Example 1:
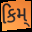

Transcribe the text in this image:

કિમ્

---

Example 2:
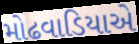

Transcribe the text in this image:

મોઢવાડિયાએ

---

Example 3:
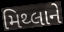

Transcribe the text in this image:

મિથ્લાને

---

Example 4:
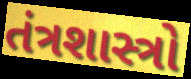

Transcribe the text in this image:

તંત્રશાસ્ત્રો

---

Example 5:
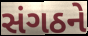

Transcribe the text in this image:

સંગઠને